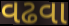
વઢવા